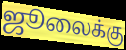
ஜூலைக்கு